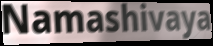
Namashivaya